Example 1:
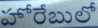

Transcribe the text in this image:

హోరేబులో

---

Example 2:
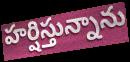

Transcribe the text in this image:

హర్షిస్తున్నాను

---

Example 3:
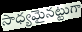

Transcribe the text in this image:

సాధ్యమైనట్టుగా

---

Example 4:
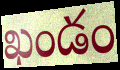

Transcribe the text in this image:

ఖండం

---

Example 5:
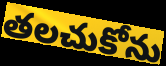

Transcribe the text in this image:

తలచుకోను